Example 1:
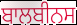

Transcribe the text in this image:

ਬਾਲਬੀਨਸ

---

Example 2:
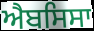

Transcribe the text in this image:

ਐਬਸਿਸਾ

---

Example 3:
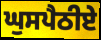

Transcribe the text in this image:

ਘੁਸਪੈਠੀਏ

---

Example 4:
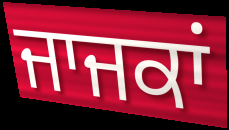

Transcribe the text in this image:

ਜਾਜਕਾਂ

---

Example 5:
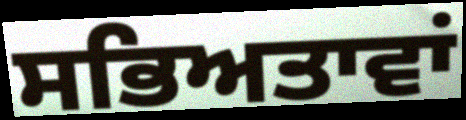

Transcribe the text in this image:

ਸਭਿਅਤਾਵਾਂ